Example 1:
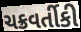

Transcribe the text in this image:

ચક્રવર્તીકી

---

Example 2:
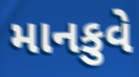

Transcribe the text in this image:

માનકુવે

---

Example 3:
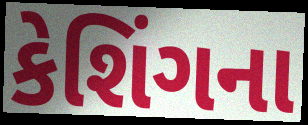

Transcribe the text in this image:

કેશિંગના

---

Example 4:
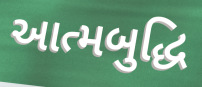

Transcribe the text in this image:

આત્મબુદ્ધિ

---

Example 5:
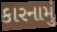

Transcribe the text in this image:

કારનામું